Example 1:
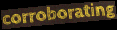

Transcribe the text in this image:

corroborating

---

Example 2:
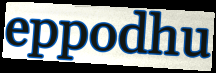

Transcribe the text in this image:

eppodhu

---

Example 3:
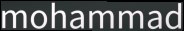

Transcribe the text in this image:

mohammad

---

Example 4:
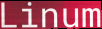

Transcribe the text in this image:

Linum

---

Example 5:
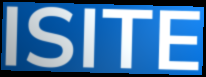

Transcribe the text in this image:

ISITE